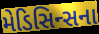
મેડિસિન્સના